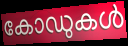
കോഡുകൾ